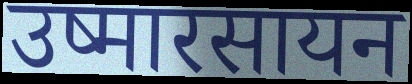
उष्मारसायन